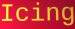
Icing